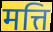
मत्ति